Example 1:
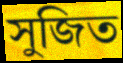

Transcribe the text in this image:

সুজিত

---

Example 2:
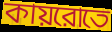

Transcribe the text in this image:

কায়রোতে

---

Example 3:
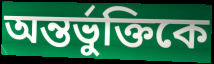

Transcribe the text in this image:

অন্তর্ভুক্তিকে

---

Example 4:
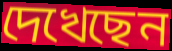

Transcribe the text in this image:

দেখেছেন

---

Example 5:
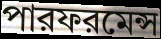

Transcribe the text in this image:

পারফরমেন্স